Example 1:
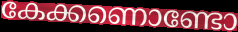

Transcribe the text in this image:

കേക്കണൊണ്ടോ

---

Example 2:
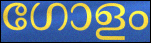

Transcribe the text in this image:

ഗോളം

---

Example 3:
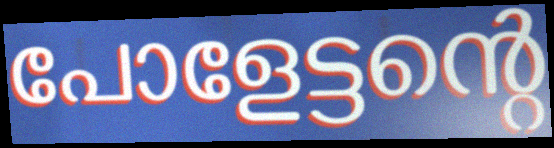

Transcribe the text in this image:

പോളേട്ടന്റെ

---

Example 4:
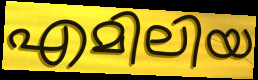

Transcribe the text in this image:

എമിലിയ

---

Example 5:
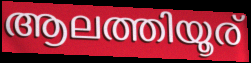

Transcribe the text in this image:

ആലത്തിയൂര്